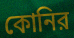
কোনির